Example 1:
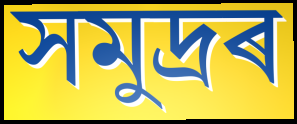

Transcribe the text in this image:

সমুদ্ৰৰ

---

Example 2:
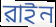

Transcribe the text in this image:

ৱাইন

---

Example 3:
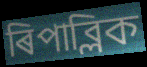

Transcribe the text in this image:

ৰিপাব্লিক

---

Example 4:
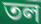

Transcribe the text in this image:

তল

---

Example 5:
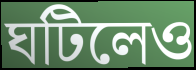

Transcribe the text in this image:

ঘটিলেও